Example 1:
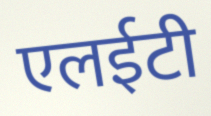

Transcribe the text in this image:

एलईटी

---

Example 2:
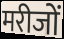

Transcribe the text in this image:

मरीजों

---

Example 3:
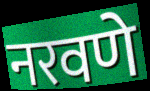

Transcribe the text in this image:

नरवणे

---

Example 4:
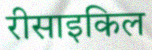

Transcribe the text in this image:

रीसाइकिल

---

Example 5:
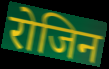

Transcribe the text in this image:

रोजिन